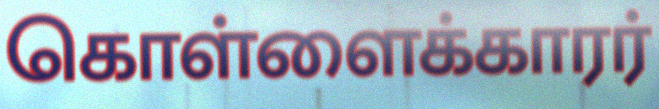
கொள்ளைக்காரர்